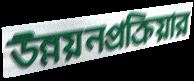
উন্নয়নপ্রক্রিয়ার